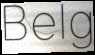
Belg